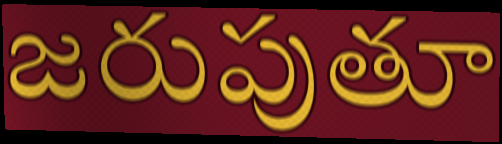
జరుపుతూ